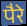
पैरे